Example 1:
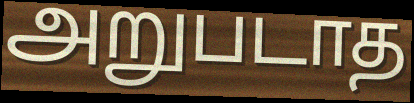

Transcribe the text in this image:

அறுபடாத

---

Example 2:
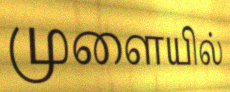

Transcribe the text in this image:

முளையில்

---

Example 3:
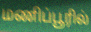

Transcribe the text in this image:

மணிப்பூரில்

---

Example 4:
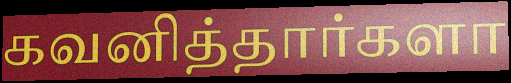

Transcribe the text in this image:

கவனித்தார்களா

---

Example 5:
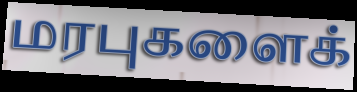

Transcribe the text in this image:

மரபுகளைக்